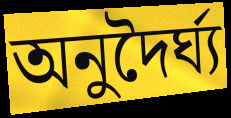
অনুদৈর্ঘ্য